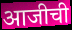
आजीची